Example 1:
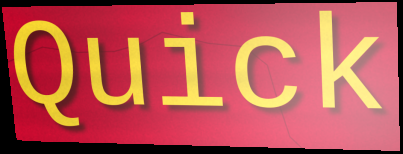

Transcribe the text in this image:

Quick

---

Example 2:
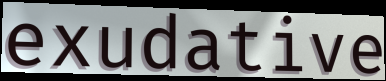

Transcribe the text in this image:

exudative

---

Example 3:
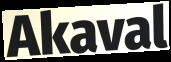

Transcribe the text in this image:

Akaval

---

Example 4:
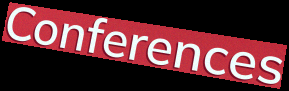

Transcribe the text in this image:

Conferences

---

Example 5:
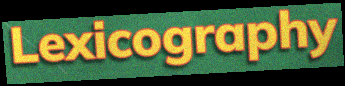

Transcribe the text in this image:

Lexicography